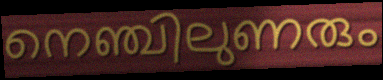
നെഞ്ചിലുണരും